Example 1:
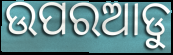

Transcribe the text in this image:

ଉପରଆଡୁ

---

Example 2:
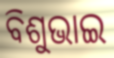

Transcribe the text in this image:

ବିଶୁଭାଇ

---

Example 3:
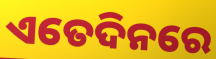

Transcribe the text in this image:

ଏତେଦିନରେ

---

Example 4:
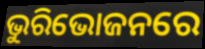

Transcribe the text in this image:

ଭୁରିଭୋଜନରେ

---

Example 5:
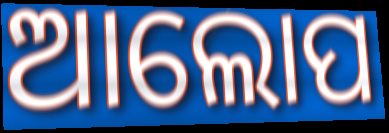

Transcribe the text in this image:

ଆଲୋପ